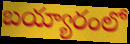
బయ్యారంలో